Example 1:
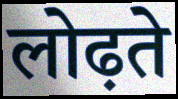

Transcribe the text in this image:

लोढ़ते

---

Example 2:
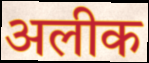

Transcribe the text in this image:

अलीक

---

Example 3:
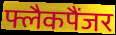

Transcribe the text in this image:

फ्लैकपैंजर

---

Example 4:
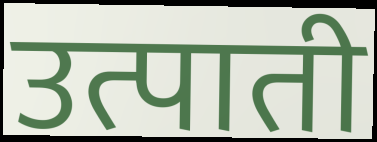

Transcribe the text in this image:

उत्पाती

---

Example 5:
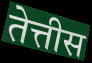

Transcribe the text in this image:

तेत्तीस